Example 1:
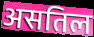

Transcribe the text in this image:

असतिल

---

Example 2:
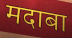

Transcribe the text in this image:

मदाबा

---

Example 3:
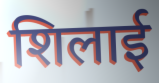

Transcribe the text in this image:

शिलाई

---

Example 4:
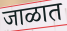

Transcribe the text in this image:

जाळात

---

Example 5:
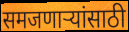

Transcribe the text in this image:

समजणाऱ्यांसाठी